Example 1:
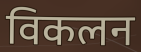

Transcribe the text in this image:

विकलन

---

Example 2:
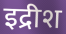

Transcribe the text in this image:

इद्रीश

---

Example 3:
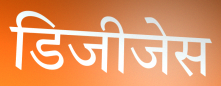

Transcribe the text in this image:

डिजीजेस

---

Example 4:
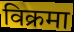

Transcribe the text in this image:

विक्रमा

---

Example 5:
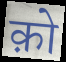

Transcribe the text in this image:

क़ो